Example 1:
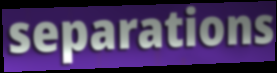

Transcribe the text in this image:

separations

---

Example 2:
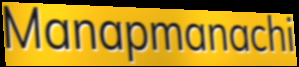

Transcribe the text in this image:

Manapmanachi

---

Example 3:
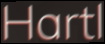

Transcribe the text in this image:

Hartl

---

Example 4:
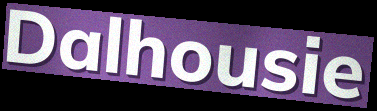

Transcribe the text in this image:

Dalhousie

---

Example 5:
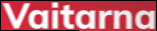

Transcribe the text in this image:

Vaitarna